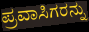
ಪ್ರವಾಸಿಗರನ್ನು